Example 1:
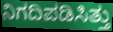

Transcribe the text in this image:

ನಿಗದಿಪಡಿಸಿತ್ತು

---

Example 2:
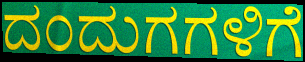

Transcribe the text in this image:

ದಂದುಗಗಳಿಗೆ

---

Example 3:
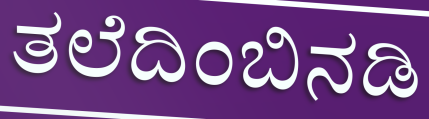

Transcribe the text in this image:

ತಲೆದಿಂಬಿನಡಿ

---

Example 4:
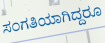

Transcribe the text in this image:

ಸಂಗತಿಯಾಗಿದ್ದರೂ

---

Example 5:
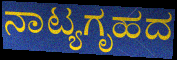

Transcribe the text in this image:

ನಾಟ್ಯಗೃಹದ